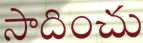
సాదించు